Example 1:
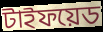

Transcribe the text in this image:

টাইফয়েড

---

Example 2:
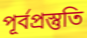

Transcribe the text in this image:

পূর্বপ্রস্তুতি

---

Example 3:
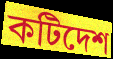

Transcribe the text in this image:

কটিদেশ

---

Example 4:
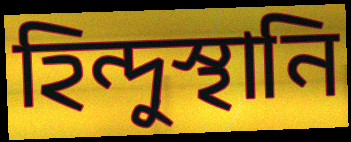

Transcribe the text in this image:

হিন্দুস্থানি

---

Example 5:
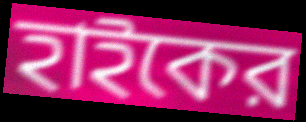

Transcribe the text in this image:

হাইকের